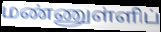
மண்ணுள்ளிப்